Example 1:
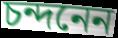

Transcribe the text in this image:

চন্দনেন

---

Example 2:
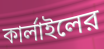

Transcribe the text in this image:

কার্লাইলের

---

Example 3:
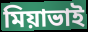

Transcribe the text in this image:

মিয়াভাই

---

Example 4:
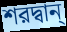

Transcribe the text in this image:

শরদ্বান্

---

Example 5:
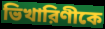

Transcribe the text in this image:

ভিখারিণীকে